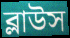
ব্লাউস